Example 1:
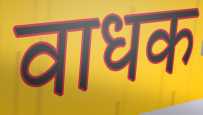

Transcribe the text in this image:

वाधक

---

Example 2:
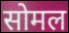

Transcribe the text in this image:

सोमल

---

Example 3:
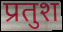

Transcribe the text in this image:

प्रतुश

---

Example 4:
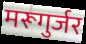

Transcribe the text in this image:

मरूगुर्जर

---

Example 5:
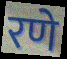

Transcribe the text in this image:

रणे